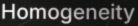
Homogeneity